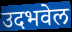
उदभवेल